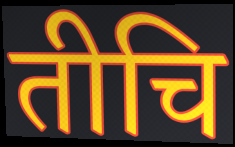
तीचि